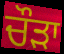
ਚੌੜਾ